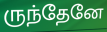
ருந்தேனே